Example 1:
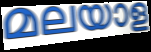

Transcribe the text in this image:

മലയാള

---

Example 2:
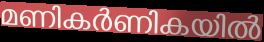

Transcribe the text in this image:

മണികർണികയിൽ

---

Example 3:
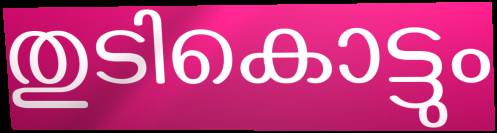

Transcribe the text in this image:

തുടികൊട്ടും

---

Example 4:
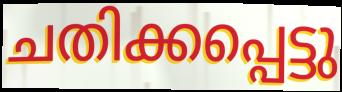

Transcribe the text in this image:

ചതിക്കപ്പെട്ടു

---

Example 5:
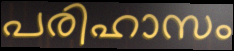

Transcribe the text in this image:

പരിഹാസം